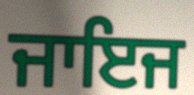
ਜਾਇਜ